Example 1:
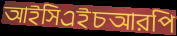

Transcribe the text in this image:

আইসিএইচআরপি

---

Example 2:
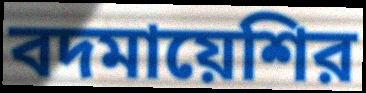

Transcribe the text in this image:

বদমায়েশির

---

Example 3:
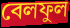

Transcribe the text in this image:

বেলফুল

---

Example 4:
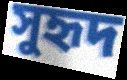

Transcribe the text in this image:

সুহৃদ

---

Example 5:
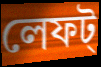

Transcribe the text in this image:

লেফট্